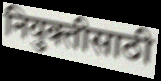
नियुक्तीसाठी